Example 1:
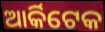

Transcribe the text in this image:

ଆର୍କିଟେକ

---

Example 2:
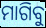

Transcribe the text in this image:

ମାଗିବୁ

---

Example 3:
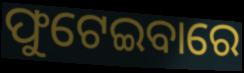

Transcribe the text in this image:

ଫୁଟେଇବାରେ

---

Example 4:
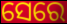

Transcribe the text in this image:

ସେରେ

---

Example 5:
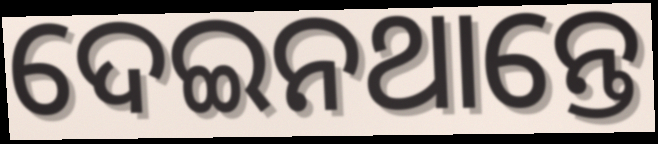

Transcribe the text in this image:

ଦେଇନଥାନ୍ତେ